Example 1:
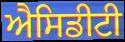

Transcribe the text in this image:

ਐਸਿਡੀਟੀ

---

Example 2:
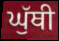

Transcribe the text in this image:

ਘੁੱਥੀ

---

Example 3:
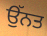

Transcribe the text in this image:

ਉੱਨਤ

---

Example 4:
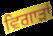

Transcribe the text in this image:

ਵਿਗਾੜਾਂ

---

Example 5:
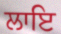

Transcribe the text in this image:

ਲਾਇ